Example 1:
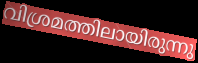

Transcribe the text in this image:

വിശ്രമത്തിലായിരുന്നു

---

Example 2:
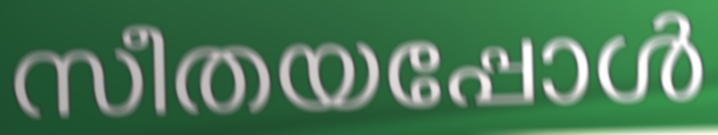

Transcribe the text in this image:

സീതയപ്പോൾ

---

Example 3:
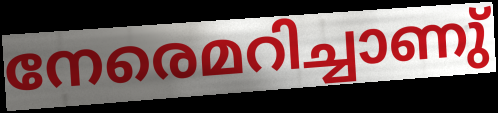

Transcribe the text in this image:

നേരെമറിച്ചാണു്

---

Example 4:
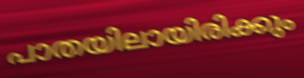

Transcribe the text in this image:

പാതയിലായിരിക്കും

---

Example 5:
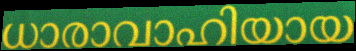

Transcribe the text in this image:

ധാരാവാഹിയായ